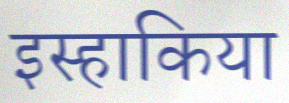
इस्हाकिया